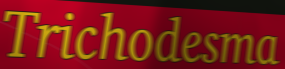
Trichodesma